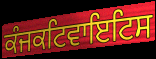
ਕੰਜਕਟਿਵਾਇਟਿਸ